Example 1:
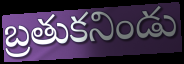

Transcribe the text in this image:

బ్రతుకనిండు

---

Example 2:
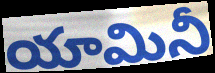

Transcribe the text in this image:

యామినీ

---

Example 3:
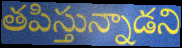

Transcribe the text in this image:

తపిస్తున్నాడని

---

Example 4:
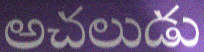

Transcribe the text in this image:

అచలుడు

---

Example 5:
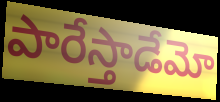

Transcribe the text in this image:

పారేస్తాడేమో